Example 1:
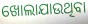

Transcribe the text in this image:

ଖୋଲାଯାଉଥିବା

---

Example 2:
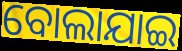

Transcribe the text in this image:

ବୋଲାଯାଇ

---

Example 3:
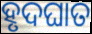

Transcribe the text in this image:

ହୃଦଘାତ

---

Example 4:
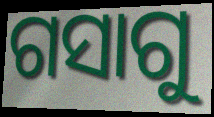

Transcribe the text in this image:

ଗସାଗୁ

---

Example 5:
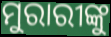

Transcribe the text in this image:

ମୁରାରୀଙ୍କୁ